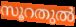
സൂറതുൽ